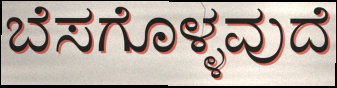
ಬೆಸಗೊಳ್ಳವುದೆ